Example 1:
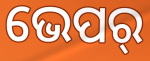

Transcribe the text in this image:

ଭେପର୍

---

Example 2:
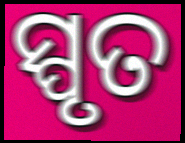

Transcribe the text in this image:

ସ୍ପୃତ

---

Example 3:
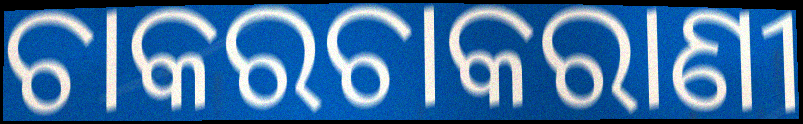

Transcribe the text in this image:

ଚାକରଚାକରାଣୀ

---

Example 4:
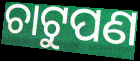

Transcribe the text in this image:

ଚାଟୁପଣ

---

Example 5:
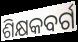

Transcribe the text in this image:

ଶିକ୍ଷକବର୍ଗ